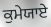
ਕੁਮੇਯਾਏ